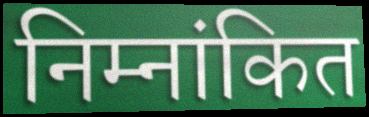
निम्नांकित